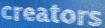
creators